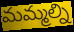
మమ్మల్ని